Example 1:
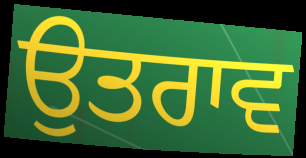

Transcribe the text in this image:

ਉਤਰਾਵ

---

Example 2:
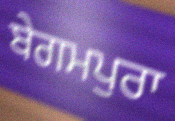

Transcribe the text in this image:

ਬੇਗਮਪੁਰਾ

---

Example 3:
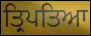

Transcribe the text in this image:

ਤ੍ਰਿਪਤਿਆ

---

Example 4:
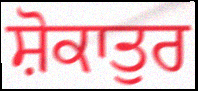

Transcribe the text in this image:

ਸ਼ੋਕਾਤੁਰ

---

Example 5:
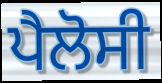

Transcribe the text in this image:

ਪੈਲੋਸੀ